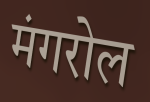
मंगरोल